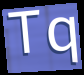
Tq